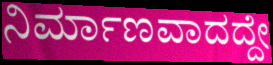
ನಿರ್ಮಾಣವಾದದ್ದೇ